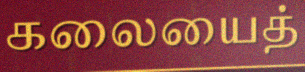
கலையைத்